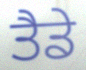
ਤੈਡੇ